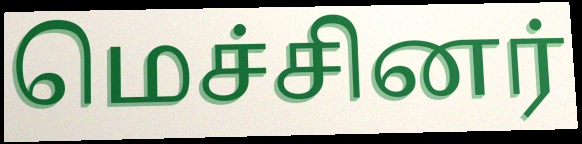
மெச்சினர்